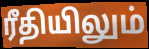
ரீதியிலும்